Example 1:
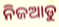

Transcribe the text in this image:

ନିଜଆଡୁ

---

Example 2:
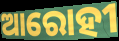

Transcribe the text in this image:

ଆରୋହୀ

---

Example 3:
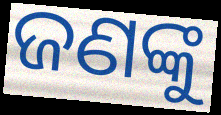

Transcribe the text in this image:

ଜଣଙ୍କୁ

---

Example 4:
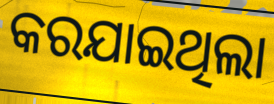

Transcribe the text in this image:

କରଯାଇଥିଲା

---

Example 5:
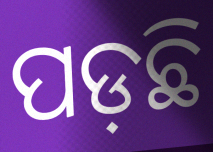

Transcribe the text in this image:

ପଡ଼ଛି